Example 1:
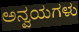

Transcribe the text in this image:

ಅನ್ವಯಗಳು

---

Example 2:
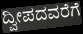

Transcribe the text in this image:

ದ್ವೀಪದವರೆಗೆ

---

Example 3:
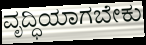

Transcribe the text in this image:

ವೃದ್ಧಿಯಾಗಬೇಕು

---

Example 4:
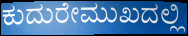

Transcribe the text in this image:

ಕುದುರೇಮುಖದಲ್ಲಿ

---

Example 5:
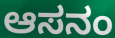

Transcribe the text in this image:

ಆಸನಂ